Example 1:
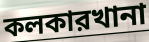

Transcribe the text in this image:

কলকারখানা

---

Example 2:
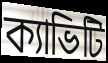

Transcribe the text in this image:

ক্যাভিটি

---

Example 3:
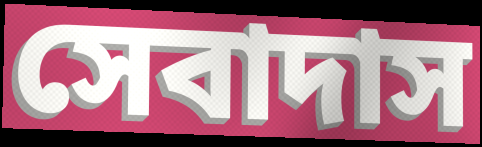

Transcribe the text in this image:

সেবাদাস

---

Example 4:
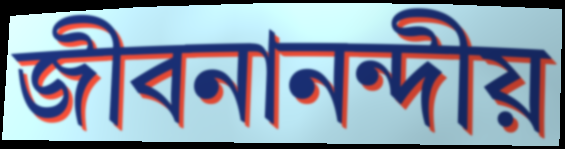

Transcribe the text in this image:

জীবনানন্দীয়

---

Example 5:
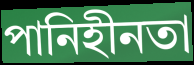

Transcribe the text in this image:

পানিহীনতা